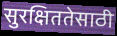
सुरक्षिततेसाठी